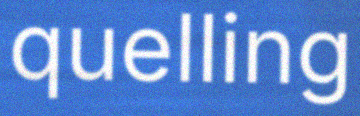
quelling